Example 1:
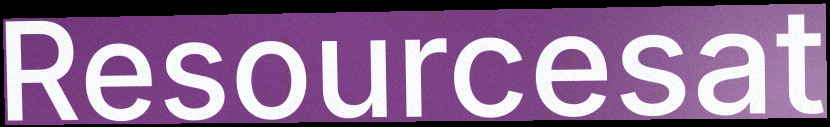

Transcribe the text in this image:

Resourcesat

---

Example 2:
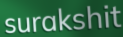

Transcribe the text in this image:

surakshit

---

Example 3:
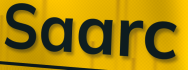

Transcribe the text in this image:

Saarc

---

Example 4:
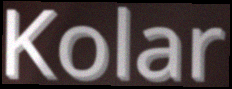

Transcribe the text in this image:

Kolar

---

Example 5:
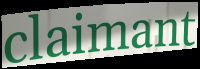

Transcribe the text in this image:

claimant